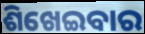
ଶିଖେଇବାର